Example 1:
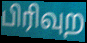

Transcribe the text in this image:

பிரிவுற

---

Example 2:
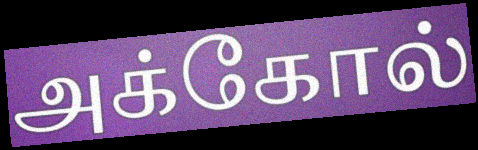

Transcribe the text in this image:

அக்கோல்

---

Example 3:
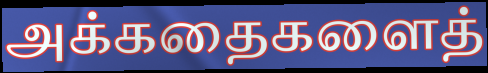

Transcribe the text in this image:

அக்கதைகளைத்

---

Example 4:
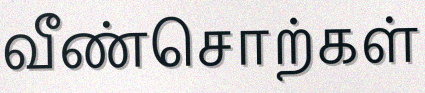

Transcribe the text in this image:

வீண்சொற்கள்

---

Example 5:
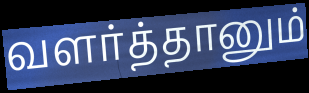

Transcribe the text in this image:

வளர்த்தானும்